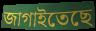
জাগাইতেছে